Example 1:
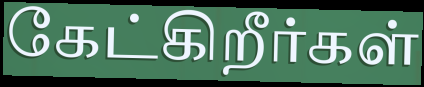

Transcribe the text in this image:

கேட்கிறீர்கள்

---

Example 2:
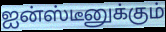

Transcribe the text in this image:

ஐன்ஸ்டீனுக்கும்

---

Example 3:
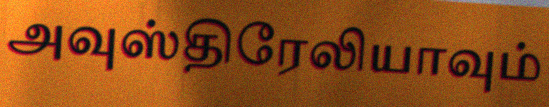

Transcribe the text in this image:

அவுஸ்திரேலியாவும்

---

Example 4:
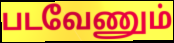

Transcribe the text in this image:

படவேணும்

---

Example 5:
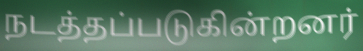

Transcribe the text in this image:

நடத்தப்படுகின்றனர்